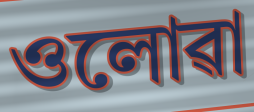
ওলোৱা